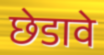
छेडावे